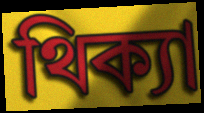
থিক্যা